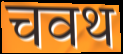
चवथ